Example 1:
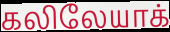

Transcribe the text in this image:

கலிலேயாக்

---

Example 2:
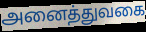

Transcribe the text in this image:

அனைத்துவகை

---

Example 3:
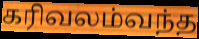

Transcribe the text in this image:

கரிவலம்வந்த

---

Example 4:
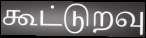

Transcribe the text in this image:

கூட்டுறவு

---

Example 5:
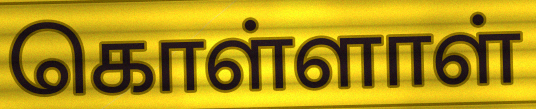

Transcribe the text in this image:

கொள்ளாள்